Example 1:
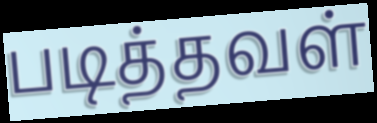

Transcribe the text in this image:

படித்தவள்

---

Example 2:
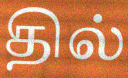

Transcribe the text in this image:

தில்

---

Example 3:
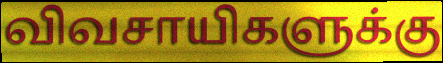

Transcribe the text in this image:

விவசாயிகளுக்கு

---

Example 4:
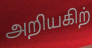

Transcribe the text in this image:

அறியகிற்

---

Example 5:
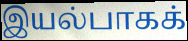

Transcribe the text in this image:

இயல்பாகக்